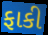
ફાકી